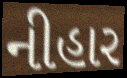
નીહાર